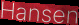
Hansen